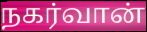
நகர்வான்